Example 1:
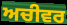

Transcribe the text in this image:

ਅਚੀਵਰ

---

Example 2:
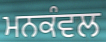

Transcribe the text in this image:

ਮਨਕੰਵਲ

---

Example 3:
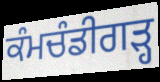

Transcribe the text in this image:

ਕੰਮਚੰਡੀਗੜ੍ਹ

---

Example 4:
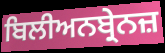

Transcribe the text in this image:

ਬਿਲੀਅਨਬ੍ਰੇਨਜ਼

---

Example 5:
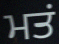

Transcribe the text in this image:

ਮਤਂ